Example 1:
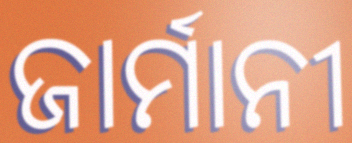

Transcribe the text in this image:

ଜାର୍ମାନୀ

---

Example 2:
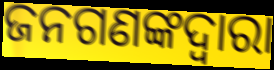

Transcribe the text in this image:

ଜନଗଣଙ୍କଦ୍ୱାରା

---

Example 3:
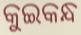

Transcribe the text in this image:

କୁଇକନ୍ଧ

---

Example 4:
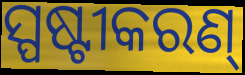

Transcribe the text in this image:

ସ୍ପଷ୍ଟୀକରଣ୍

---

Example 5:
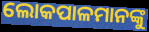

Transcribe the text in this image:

ଲୋକପାଳମାନଙ୍କୁ